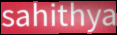
sahithya